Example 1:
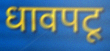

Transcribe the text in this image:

धावपटू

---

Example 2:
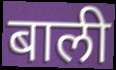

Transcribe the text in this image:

बाली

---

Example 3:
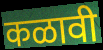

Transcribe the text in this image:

कळावी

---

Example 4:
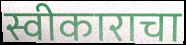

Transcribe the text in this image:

स्वीकाराचा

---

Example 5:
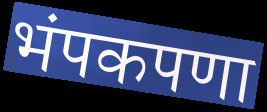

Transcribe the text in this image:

भंपकपणा